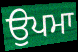
ਉਪਮਾ